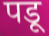
पडू